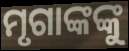
ମୃଗାଙ୍କଙ୍କୁ